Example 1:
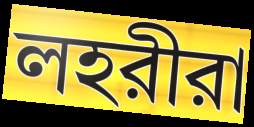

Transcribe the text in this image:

লহরীরা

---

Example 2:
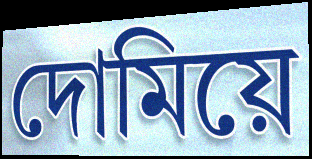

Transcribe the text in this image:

দোমিয়ে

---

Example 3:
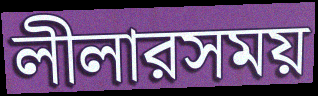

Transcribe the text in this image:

লীলারসময়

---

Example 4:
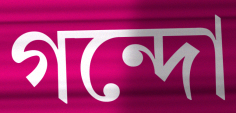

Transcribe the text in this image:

গন্দো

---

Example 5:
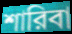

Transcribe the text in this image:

শারিবা